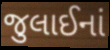
જુલાઈનાં